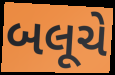
બલૂચે